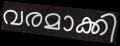
വരമാക്കി